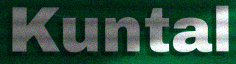
Kuntal